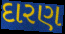
દારણ